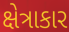
ક્ષેત્રાકાર